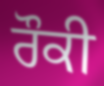
ਰੌਕੀ